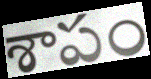
శాపం